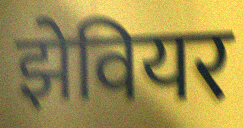
झेवियर